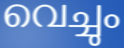
വെച്ചും